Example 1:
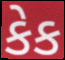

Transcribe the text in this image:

કેક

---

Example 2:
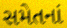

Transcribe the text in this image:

સમેતનાં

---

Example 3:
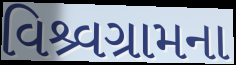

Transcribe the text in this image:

વિશ્ર્વગ્રામના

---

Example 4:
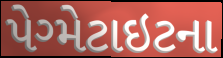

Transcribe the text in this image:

પેગ્મેટાઇટના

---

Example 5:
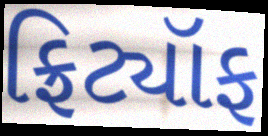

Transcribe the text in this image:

ફ્રિટ્યૉફ